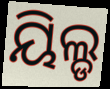
ୟିଲ୍ଡ